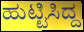
ಹುಟ್ಟಿಸಿದ್ದ